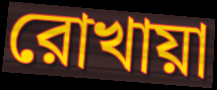
রোখায়া